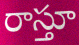
రాస్తూ